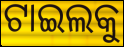
ଟାଇଲକୁ